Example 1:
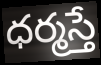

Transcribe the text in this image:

ధర్మస్తే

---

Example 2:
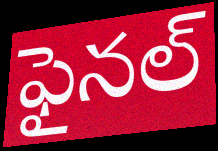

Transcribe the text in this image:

ఫైనల్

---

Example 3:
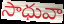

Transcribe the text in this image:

సాధువా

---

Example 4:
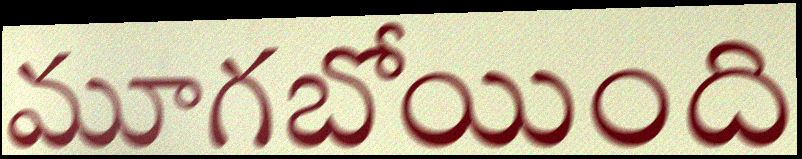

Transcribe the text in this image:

మూగబోయింది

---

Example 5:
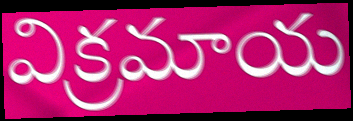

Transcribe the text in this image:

విక్రమాయ